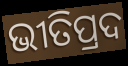
ଭୀତିପ୍ରଦ